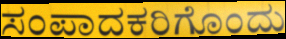
ಸಂಪಾದಕರಿಗೊಂದು